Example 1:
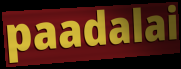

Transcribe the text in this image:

paadalai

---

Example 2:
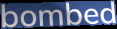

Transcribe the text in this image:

bombed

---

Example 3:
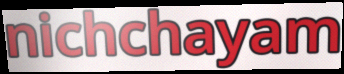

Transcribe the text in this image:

nichchayam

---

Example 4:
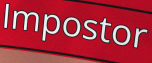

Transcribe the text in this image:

Impostor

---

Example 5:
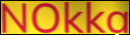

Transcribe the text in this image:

NOkka